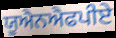
ਯੂਐਨਐਫਪੀਏ